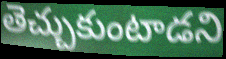
తెచ్చుకుంటాడని